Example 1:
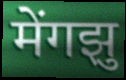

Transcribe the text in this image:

मेंगझु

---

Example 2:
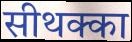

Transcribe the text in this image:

सीथक्का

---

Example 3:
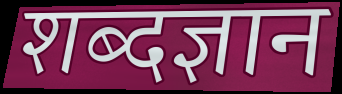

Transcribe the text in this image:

शब्दज्ञान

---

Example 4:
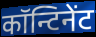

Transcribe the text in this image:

कॉन्टिनेंट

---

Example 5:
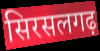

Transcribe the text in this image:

सिरसलगढ़